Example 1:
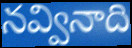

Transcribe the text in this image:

నవ్వినాది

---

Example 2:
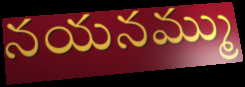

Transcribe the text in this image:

నయనమ్ము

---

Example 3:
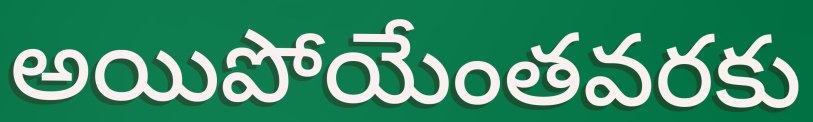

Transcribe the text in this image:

అయిపోయేంతవరకు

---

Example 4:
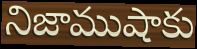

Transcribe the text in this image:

నిజాముషాకు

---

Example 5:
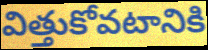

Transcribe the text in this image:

విత్తుకోవటానికి